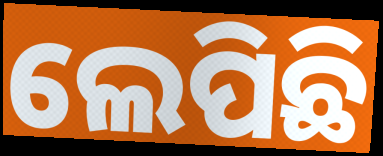
ଲେପିଛି